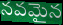
నవమైన